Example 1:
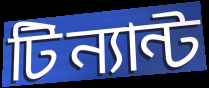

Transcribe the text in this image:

টিন্যান্ট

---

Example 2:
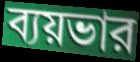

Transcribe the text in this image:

ব্যয়ভার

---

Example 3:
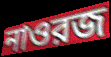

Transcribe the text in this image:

নাওরজ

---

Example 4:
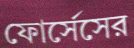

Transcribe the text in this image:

ফোর্সেসের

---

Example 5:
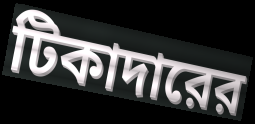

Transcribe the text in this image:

টিকাদারের